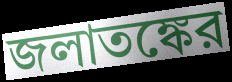
জলাতঙ্কের